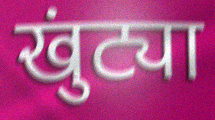
खुंट्या